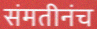
संमतीनंच